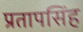
प्रतापसिंह